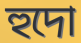
হুদো